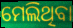
ମେଲିଥିବା